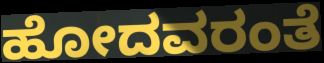
ಹೋದವರಂತೆ